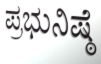
ಪ್ರಭುನಿಷ್ಠೆ